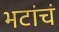
भटांचं